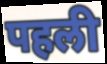
पहली